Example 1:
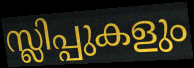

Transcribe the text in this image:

സ്ലിപ്പുകളും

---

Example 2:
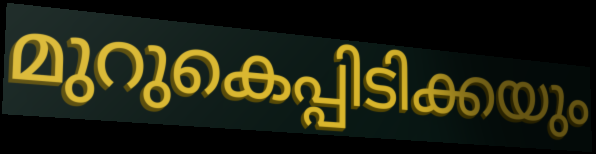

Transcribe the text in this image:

മുറുകെപ്പിടിക്കയും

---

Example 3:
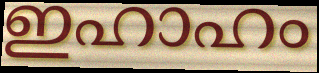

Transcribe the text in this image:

ഇഹാഹം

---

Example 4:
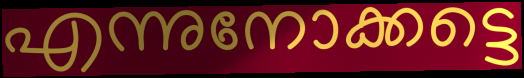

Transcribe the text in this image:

എന്നുനോക്കട്ടെ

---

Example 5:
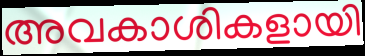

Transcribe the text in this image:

അവകാശികളായി